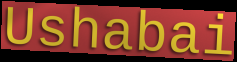
Ushabai